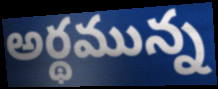
అర్థమున్న